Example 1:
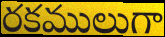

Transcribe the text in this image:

రకములుగా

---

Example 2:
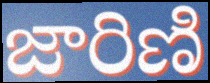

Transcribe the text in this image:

జారిణి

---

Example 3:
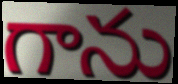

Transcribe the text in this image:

గాను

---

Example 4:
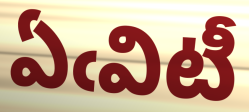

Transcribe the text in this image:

ఏఁవిటీ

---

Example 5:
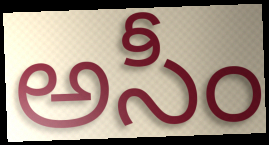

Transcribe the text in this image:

అసీం